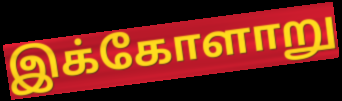
இக்கோளாறு